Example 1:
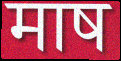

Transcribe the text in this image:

माष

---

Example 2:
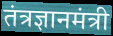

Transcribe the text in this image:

तंत्रज्ञानमंत्री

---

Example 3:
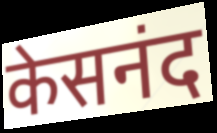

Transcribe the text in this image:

केसनंद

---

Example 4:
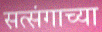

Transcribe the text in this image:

सत्संगाच्या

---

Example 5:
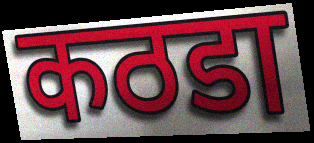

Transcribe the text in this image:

कठडा